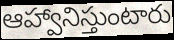
ఆహ్వానిస్తుంటారు